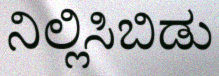
ನಿಲ್ಲಿಸಿಬಿಡು